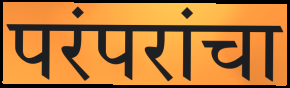
परंपरांचा